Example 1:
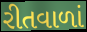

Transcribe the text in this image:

રીતવાળાં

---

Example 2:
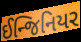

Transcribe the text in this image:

ઈન્જિનિયર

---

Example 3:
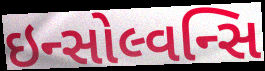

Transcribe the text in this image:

ઇન્સોલ્વન્સિ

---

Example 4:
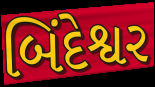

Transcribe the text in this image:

બિંદેશ્વર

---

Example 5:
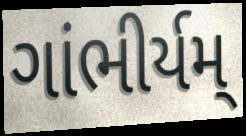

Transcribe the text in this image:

ગાંભીર્યમ્